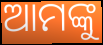
ଆମଙ୍କୁ